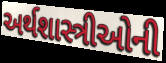
અર્થશાસ્ત્રીઓની